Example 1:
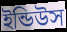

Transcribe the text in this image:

ইন্ডিউস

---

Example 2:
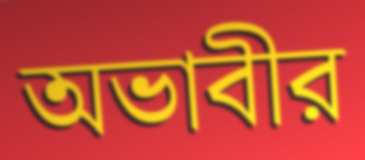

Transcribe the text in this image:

অভাবীর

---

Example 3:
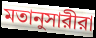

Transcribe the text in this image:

মতানুসারীরা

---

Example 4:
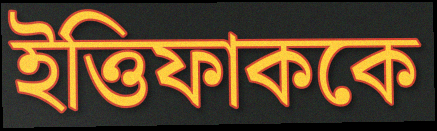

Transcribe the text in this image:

ইত্তিফাককে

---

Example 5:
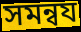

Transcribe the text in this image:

সমন্বয